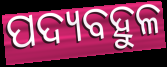
ପଦ୍ୟବହୁଳ